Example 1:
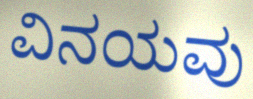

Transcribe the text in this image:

ವಿನಯವು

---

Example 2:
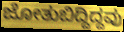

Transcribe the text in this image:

ಜೋತುಬಿದ್ದಿದ್ದವು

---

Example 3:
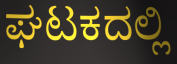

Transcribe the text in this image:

ಘಟಕದಲ್ಲಿ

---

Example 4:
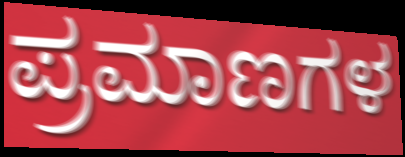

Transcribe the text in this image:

ಪ್ರಮಾಣಗಳ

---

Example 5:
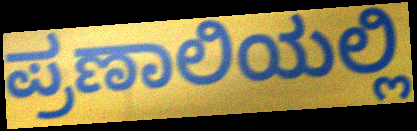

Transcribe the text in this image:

ಪ್ರಣಾಲಿಯಲ್ಲಿ